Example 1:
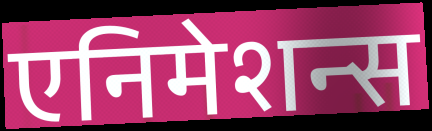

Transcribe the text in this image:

एनिमेशन्स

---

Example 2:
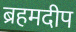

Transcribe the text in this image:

ब्रहमदीप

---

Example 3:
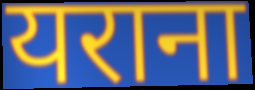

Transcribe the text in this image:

यराना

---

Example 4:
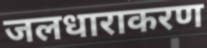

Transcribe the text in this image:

जलधाराकरण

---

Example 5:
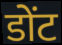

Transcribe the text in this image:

डोंट